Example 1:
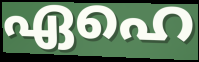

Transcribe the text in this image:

ഏഹെ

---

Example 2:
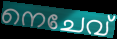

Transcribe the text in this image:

നെചേവ്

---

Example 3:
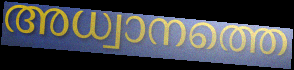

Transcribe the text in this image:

അധ്വാനത്തെ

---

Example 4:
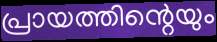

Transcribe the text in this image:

പ്രായത്തിന്റെയും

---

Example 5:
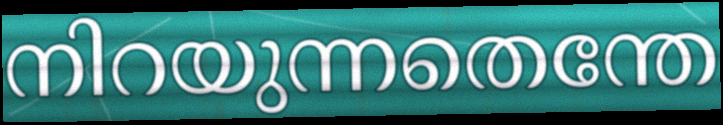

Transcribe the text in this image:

നിറയുന്നതെന്തേ